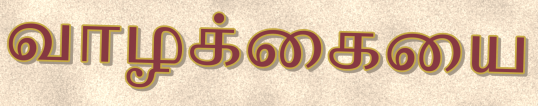
வாழக்கையை